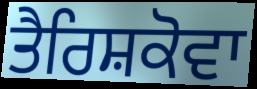
ਤੈਰਿਸ਼ਕੋਵਾ